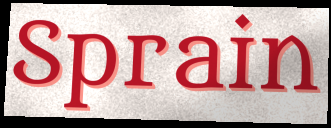
Sprain